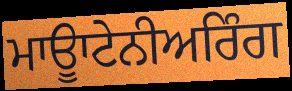
ਮਾਊਾਟੇਨੀਅਰਿੰਗ